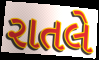
રાતલે